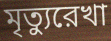
মৃত্যুরেখা